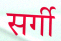
सर्गी